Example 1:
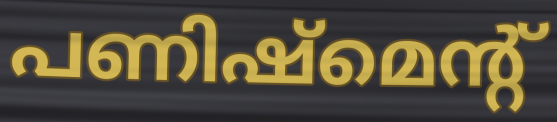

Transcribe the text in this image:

പണിഷ്മെന്റ്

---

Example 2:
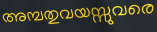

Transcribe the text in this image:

അമ്പതുവയസ്സുവരെ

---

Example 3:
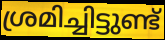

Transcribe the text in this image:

ശ്രമിച്ചിട്ടുണ്ട്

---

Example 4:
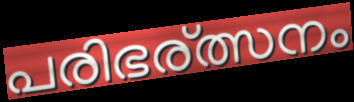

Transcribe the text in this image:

പരിഭര്ത്സനം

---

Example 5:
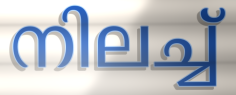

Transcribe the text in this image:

നിലച്ച്